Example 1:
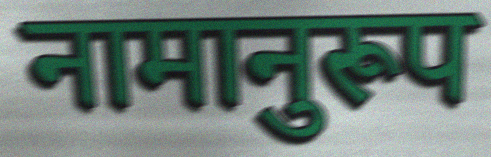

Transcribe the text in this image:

नामानुरूप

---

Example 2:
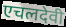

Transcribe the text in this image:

एचलदेवी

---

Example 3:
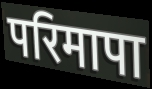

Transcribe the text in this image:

परिमापा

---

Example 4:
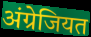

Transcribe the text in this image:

अंग्रेजियत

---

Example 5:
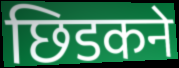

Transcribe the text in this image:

छिडकने